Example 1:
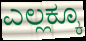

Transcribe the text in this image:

ಎಲ್ಲಕ್ಕೂ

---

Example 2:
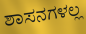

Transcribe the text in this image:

ಶಾಸನಗಳಲ್ಲ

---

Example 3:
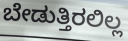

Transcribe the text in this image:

ಬೇಡುತ್ತಿರಲಿಲ್ಲ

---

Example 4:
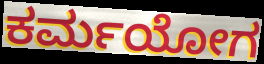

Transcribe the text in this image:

ಕರ್ಮಯೋಗ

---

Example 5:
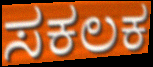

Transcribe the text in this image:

ಸಕಲಕ